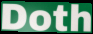
Doth